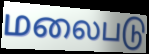
மலைபடு